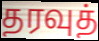
தரவுத்